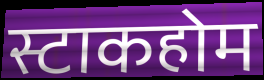
स्टाकहोम